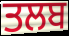
ਤਲਬ